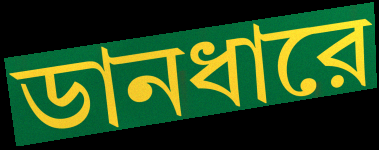
ডানধারে